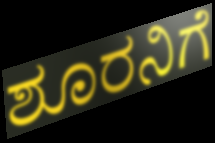
ಶೂರನಿಗೆ